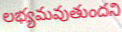
లభ్యమవుతుందని